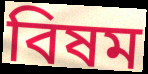
বিষম